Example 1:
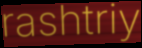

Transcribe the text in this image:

rashtriy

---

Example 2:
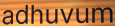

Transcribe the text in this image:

adhuvum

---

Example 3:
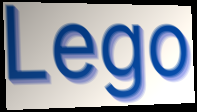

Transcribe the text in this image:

Lego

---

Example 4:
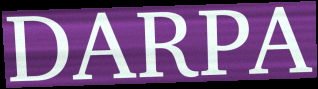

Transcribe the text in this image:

DARPA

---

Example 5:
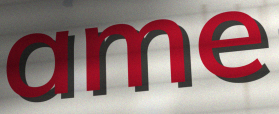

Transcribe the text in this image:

ame